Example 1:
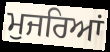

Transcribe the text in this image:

ਮੁਜਰਿਆਂ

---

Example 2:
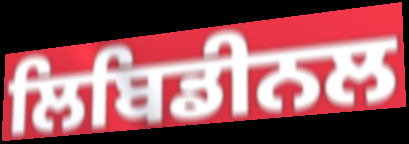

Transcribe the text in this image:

ਲਿਬਿਡੀਨਲ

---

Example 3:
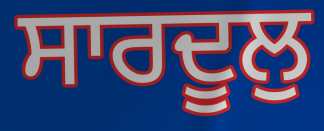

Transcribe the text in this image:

ਸਾਰਦੂਲੁ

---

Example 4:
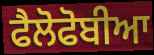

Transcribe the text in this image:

ਫੈਲੋਫੋਬੀਆ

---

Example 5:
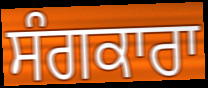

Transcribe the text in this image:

ਸੰਗਕਾਰਾ